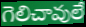
గెలిచావులే